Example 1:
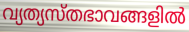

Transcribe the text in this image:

വ്യത്യസ്തഭാവങ്ങളിൽ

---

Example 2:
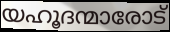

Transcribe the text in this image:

യഹൂദന്മാരോട്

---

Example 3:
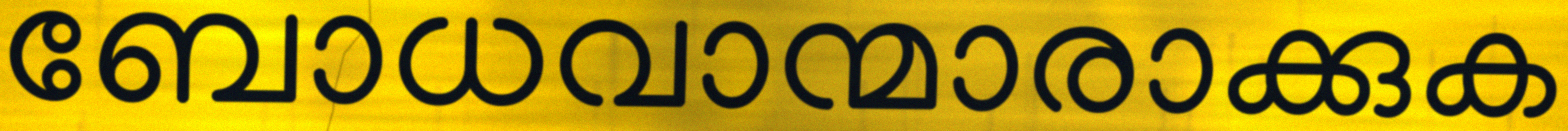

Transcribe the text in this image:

ബോധവാന്മാരാക്കുക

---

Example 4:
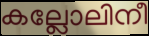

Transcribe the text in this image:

കല്ലോലിനീ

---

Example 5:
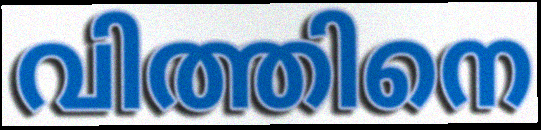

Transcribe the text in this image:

വിത്തിനെ